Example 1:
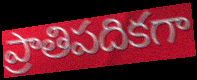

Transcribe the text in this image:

ప్రాతిపదికగా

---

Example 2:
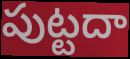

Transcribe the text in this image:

పుట్టదా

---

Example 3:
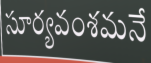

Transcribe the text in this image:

సూర్యవంశమనే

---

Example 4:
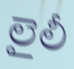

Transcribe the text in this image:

లైలీ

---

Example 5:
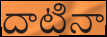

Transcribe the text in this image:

దాటినా